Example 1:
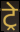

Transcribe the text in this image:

ट्रे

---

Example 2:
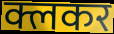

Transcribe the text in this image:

क्लकर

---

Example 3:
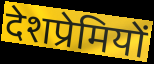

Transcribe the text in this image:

देशप्रेमियों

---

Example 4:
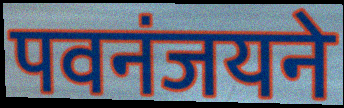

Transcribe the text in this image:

पवनंजयने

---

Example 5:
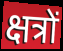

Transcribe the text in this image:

क्षत्रों